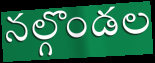
నల్గొండల